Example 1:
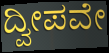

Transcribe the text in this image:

ದ್ವೀಪವೇ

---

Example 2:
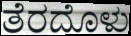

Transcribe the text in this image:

ತೆರದೊಳು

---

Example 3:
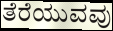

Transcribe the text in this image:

ತೆರೆಯುವವು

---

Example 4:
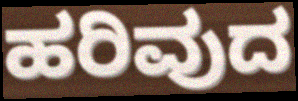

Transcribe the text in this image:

ಹರಿವುದ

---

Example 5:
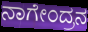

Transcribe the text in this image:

ನಾಗೇಂದ್ರನ